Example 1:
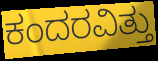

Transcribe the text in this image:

ಕಂದರವಿತ್ತು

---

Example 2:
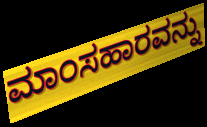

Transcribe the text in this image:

ಮಾಂಸಹಾರವನ್ನು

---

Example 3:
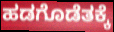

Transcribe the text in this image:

ಹಡಗೊಡೆತಕ್ಕೆ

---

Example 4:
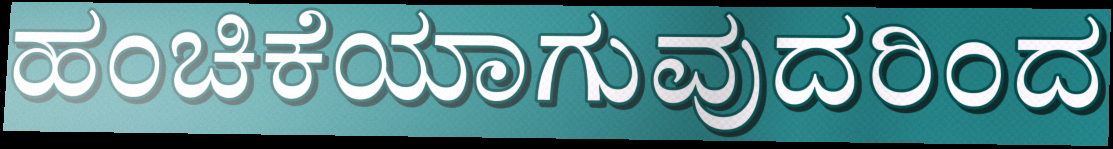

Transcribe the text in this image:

ಹಂಚಿಕೆಯಾಗುವುದರಿಂದ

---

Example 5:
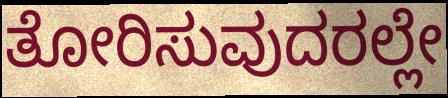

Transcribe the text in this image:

ತೋರಿಸುವುದರಲ್ಲೇ